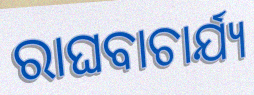
ରାଘବାଚାର୍ଯ୍ୟ